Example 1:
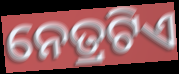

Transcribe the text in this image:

ନେତ୍ରଟିଏ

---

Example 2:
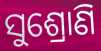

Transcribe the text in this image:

ସୁଶ୍ରୋଣି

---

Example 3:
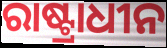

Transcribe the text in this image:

ରାଷ୍ଟ୍ରାଧୀନ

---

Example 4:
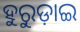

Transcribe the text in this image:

ହୁରୁଡ଼ାଇ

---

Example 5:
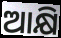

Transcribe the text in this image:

ଆକ୍ଷି